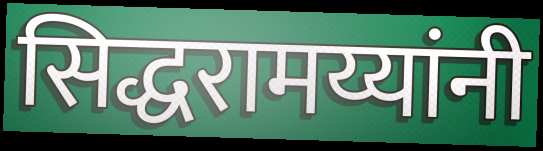
सिद्धरामय्यांनी